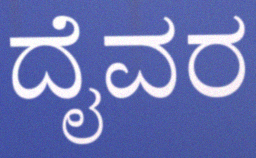
ದೈವರ